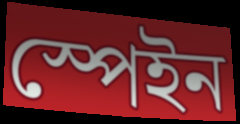
স্পেইন